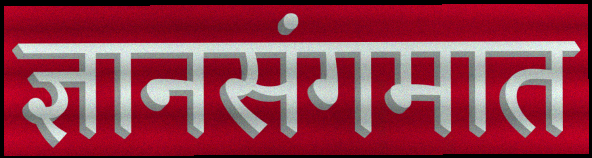
ज्ञानसंगमात